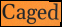
Caged